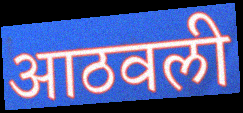
आठवली